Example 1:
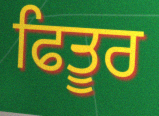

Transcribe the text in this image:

ਫਿਤੂਰ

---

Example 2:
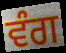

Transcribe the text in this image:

ਵੰਗ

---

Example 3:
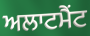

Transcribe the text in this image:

ਅਲਾਟਮੈਂਟ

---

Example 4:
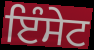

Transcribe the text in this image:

ਇੰਸੇਟ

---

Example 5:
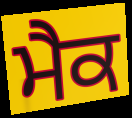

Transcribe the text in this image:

ਮੈਕ